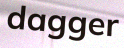
dagger